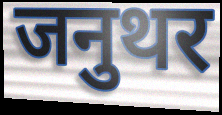
जनुथर